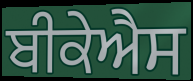
ਬੀਕੇਐਸ